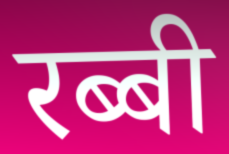
रब्बी